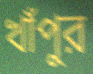
খাঁপুর